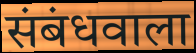
संबंधवाला